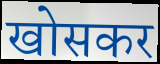
खोसकर